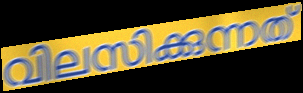
വിലസിക്കുന്നത്